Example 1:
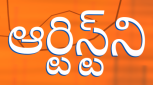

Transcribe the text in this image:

ఆర్టిస్ట్‌ని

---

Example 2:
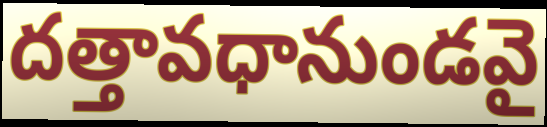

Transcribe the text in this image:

దత్తావధానుండవై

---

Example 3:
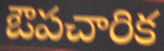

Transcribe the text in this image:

ఔపచారిక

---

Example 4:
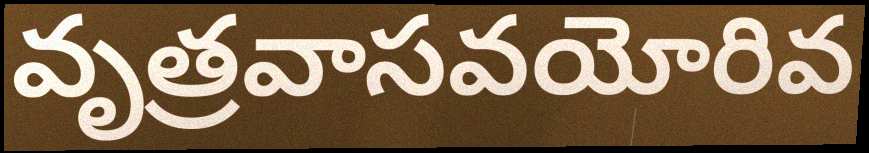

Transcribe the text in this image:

వృత్రవాసవయోరివ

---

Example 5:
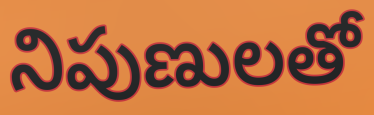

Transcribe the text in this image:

నిపుణులతో